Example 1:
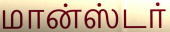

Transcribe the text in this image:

மான்ஸ்டர்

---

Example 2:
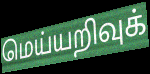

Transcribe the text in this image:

மெய்யறிவுக்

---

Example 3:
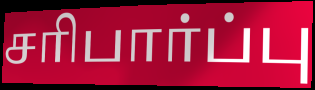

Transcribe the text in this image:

சரிபார்ப்பு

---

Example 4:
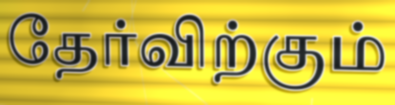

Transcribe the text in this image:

தேர்விற்கும்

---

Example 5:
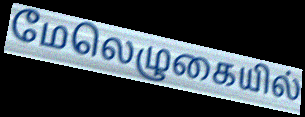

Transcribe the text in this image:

மேலெழுகையில்